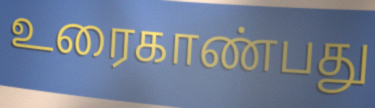
உரைகாண்பது